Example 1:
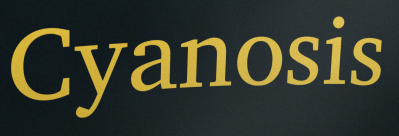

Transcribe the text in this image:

Cyanosis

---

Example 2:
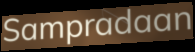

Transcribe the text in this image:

Sampradaan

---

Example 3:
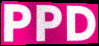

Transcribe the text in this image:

PPD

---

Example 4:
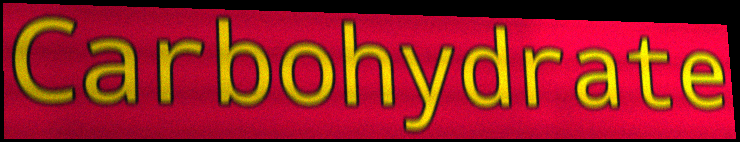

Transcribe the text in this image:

Carbohydrate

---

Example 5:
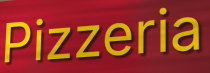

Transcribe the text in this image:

Pizzeria